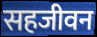
सहजीवन